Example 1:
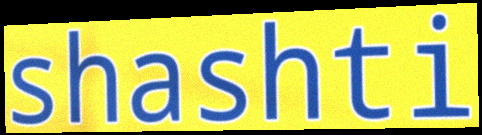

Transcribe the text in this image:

shashti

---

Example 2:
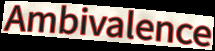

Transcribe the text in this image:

Ambivalence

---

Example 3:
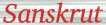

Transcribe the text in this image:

Sanskrut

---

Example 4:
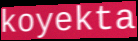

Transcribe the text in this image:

koyekta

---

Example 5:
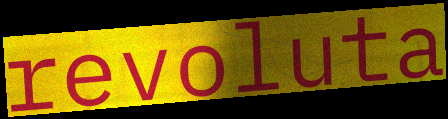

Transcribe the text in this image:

revoluta